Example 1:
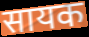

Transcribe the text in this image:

सायक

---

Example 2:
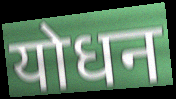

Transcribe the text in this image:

योधन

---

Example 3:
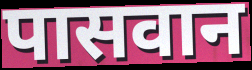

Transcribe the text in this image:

पासवान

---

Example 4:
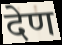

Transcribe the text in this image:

देण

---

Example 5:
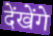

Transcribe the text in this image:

देंखेंगे